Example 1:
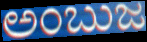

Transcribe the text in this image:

ಅಂಬುಜ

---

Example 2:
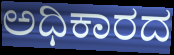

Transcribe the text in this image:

ಅಧಿಕಾರದ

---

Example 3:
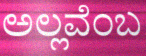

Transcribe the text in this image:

ಅಲ್ಲವೆಂಬ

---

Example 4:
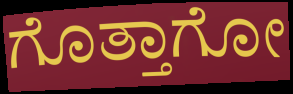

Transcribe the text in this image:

ಗೊತ್ತಾಗೋ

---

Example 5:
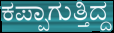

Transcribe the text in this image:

ಕಪ್ಪಾಗುತ್ತಿದ್ದ